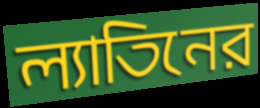
ল্যাতিনের